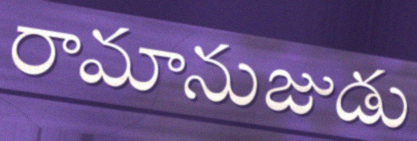
రామానుజుడు